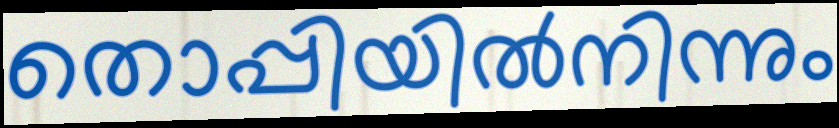
തൊപ്പിയിൽനിന്നും